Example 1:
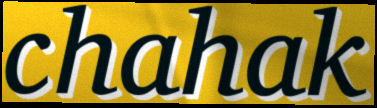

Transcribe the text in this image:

chahak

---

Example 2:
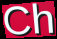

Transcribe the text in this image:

Ch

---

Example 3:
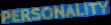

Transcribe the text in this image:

PERSONALITY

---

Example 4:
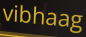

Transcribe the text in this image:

vibhaag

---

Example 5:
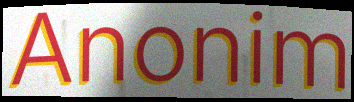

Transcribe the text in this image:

Anonim